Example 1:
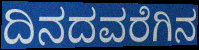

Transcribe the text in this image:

ದಿನದವರೆಗಿನ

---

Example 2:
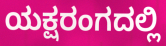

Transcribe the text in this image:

ಯಕ್ಷರಂಗದಲ್ಲಿ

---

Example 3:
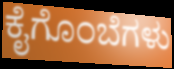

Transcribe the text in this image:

ಕೈಗೊಂಬೆಗಳು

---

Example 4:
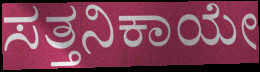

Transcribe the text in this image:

ಸತ್ತನಿಕಾಯೇ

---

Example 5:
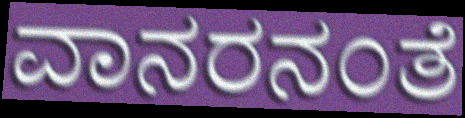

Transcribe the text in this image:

ವಾನರನಂತೆ